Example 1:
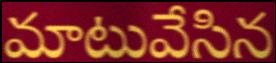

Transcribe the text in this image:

మాటువేసిన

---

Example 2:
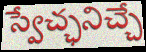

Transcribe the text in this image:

స్వేచ్ఛనిచ్చే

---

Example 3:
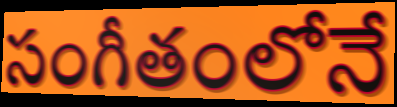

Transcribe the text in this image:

సంగీతంలోనే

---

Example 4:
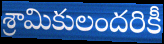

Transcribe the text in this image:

శ్రామికులందరికీ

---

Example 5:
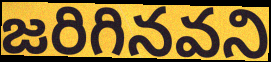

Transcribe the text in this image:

జరిగినవని